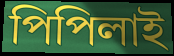
পিপিলাই